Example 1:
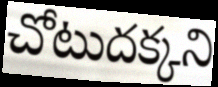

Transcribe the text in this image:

చోటుదక్కని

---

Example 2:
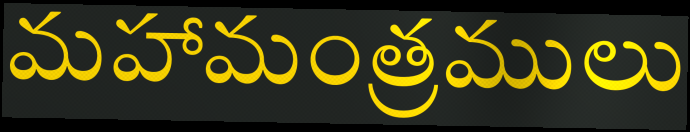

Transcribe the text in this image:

మహామంత్రములు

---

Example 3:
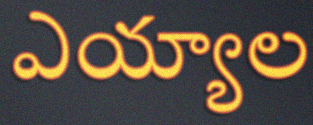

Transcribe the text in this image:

ఎయ్యాల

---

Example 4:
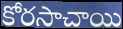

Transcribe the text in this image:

కోరసాచాయి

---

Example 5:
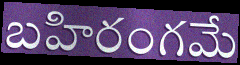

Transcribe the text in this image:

బహిరంగమే